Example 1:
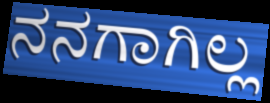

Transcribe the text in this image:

ನನಗಾಗಿಲ್ಲ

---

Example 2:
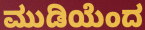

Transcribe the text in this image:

ಮುಡಿಯೆಂದ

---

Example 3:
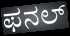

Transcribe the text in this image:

ಫನಲ್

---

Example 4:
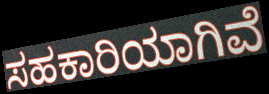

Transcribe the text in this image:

ಸಹಕಾರಿಯಾಗಿವೆ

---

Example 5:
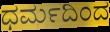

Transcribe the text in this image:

ಧರ್ಮದಿಂದ